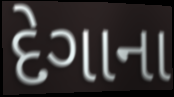
દેગાના